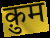
क़ुम